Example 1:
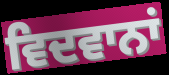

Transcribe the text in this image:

ਵਿਦਵਾਨਾਂ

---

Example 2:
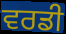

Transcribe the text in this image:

ਵਰਡੀ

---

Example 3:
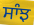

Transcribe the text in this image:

ਸਾੰਝ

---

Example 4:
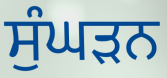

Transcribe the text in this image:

ਸੁੰਘੜਨ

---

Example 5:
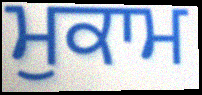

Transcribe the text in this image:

ਮੁਕਾਮ